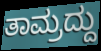
ತಾಮ್ರದ್ದು